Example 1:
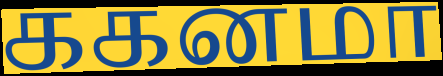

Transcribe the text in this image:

ககனமா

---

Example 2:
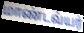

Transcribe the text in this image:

மாண்டவ்யர்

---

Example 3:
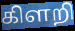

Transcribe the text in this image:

கிளறி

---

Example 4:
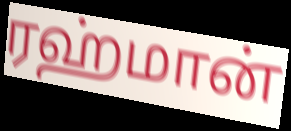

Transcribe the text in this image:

ரஹ்மான்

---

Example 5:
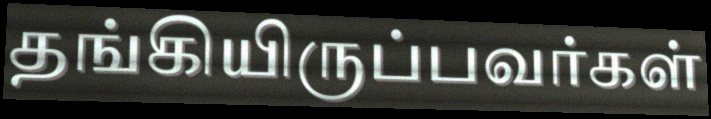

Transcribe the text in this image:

தங்கியிருப்பவர்கள்